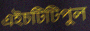
এইচটিটিপুল